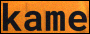
kame